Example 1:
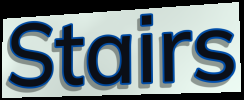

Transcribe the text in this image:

Stairs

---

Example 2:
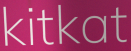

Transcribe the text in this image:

kitkat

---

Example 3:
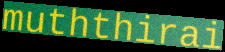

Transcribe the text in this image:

muththirai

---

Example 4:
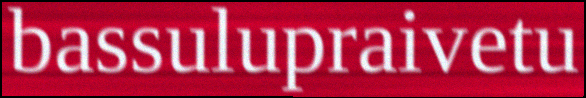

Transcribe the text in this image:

bassulupraivetu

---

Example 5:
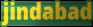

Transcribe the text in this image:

jindabad